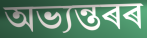
অভ্যন্তৰৰ